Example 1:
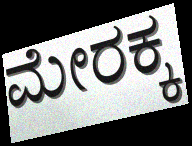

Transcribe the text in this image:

ಮೇರಕ್ಕ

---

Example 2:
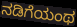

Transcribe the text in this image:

ನಡಿಗೆಯಂಥ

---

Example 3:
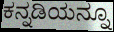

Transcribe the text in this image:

ಕನ್ನಡಿಯನ್ನೂ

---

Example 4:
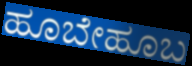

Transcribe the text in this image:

ಹೂಬೇಹೂಬ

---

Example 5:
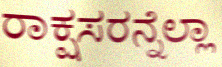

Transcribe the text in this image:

ರಾಕ್ಷಸರನ್ನೆಲ್ಲಾ